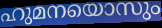
ഹുമനയൊസും